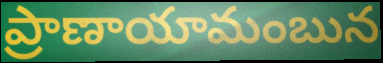
ప్రాణాయామంబున